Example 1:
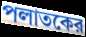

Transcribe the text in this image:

পলাতকের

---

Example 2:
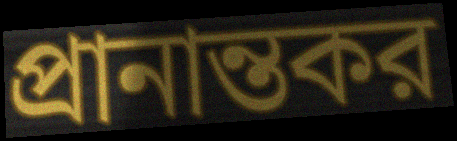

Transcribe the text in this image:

প্রানান্তকর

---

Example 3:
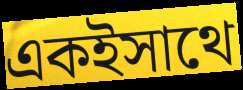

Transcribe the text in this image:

একইসাথে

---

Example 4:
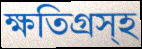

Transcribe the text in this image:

ক্ষতিগ্রস্হ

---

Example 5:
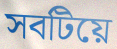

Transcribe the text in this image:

সবটিয়ে